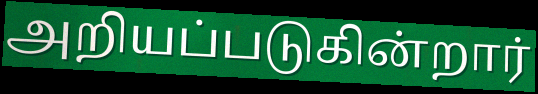
அறியப்படுகின்றார்